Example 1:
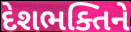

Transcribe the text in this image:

દેશભક્તિને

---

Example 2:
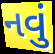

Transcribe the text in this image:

નવું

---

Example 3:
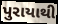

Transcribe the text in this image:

પુરાયાથી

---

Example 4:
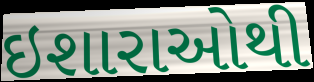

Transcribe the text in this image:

ઇશારાઓથી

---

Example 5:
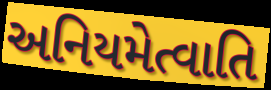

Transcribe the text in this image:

અનિયમેત્વાતિ